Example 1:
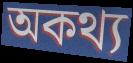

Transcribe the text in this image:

অকথ্য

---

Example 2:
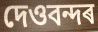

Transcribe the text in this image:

দেওবন্দৰ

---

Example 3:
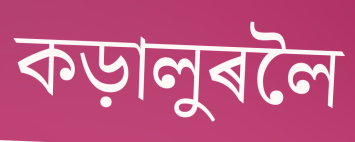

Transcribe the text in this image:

কড়ালুৰলৈ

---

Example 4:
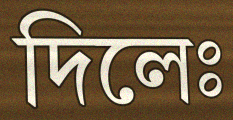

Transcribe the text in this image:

দিলেঃ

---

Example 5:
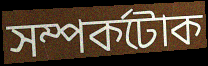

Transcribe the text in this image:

সম্পৰ্কটোক